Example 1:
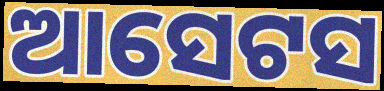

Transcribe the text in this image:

ଆସେଟସ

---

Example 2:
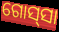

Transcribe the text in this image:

ଗୋସ୍‌ସା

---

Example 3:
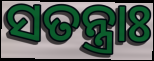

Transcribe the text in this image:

ସତନ୍ତ୍ରାଃ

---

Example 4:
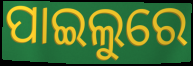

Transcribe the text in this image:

ପାଇଲୁରେ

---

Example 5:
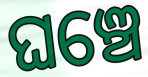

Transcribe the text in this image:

ଘଞ୍ଚେ